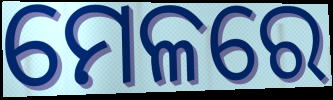
ମେଳରେ